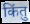
किंतु